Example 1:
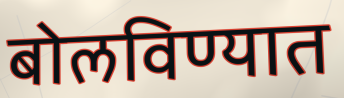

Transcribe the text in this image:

बोलविण्यात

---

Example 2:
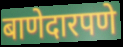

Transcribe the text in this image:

बाणेदारपणे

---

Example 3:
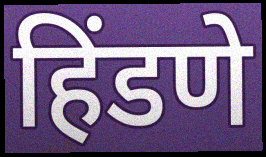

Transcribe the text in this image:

हिंडणे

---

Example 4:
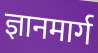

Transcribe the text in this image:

ज्ञानमार्ग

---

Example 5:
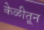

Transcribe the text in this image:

केळीतून